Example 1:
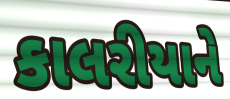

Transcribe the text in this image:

કાલરીયાને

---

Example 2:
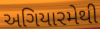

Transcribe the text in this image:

અગિયારમેથી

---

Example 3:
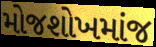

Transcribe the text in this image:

મોજશોખમાંજ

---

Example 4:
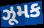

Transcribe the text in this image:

ઝૂમક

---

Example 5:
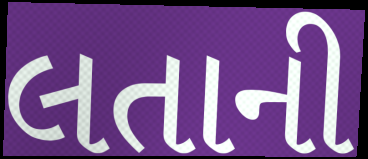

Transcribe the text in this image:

લતાની